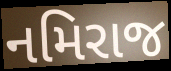
નમિરાજ